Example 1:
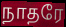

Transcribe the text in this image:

நாதரே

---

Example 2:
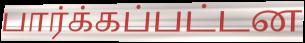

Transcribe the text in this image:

பார்க்கப்பட்டன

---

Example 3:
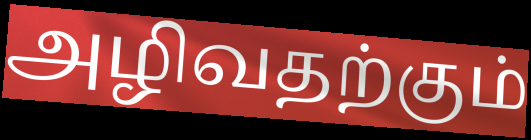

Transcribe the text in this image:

அழிவதற்கும்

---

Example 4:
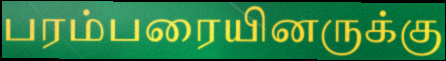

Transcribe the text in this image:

பரம்பரையினருக்கு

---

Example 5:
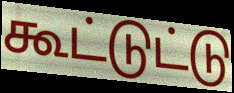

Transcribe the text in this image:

கூட்டுட்டு